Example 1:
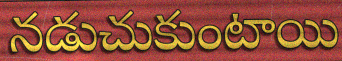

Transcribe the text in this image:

నడుచుకుంటాయి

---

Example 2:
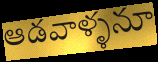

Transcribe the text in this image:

ఆడవాళ్ళనూ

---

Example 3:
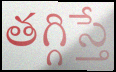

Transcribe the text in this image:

తగ్గిస్తే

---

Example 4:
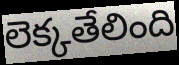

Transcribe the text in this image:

లెక్కతేలింది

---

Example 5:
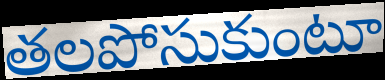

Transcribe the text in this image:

తలపోసుకుంటూ